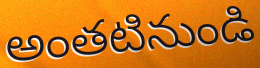
అంతటినుండి